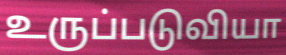
உருப்படுவியா